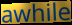
awhile